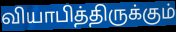
வியாபித்திருக்கும்